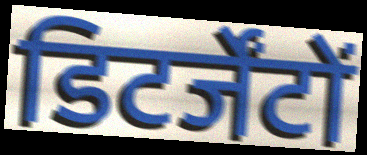
डिटर्जेंटों